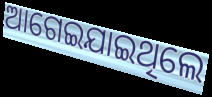
ଆଗେଇଯାଇଥିଲେ